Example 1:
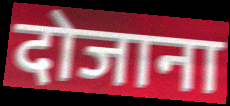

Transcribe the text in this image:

दोजाना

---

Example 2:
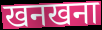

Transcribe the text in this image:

खनखना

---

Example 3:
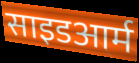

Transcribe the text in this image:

साइडआर्म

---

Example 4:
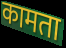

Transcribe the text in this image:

कामता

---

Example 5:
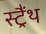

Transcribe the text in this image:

स्ट्रैंथ